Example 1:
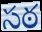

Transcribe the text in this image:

సఠ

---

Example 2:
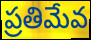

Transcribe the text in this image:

ప్రతిమేవ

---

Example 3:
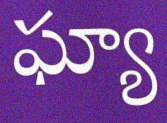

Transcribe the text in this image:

ఘ్యా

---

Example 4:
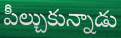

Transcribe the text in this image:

పీల్చుకున్నాడు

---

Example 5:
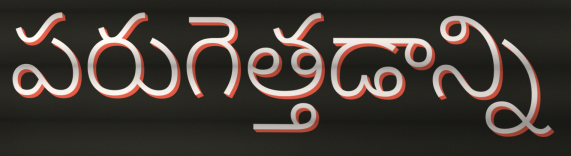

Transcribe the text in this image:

పరుగెత్తడాన్ని